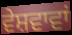
ਵੇਸ਼ਵਾਵਾਂ